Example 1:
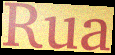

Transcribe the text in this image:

Rua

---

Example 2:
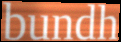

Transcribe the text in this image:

bundh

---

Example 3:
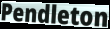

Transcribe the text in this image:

Pendleton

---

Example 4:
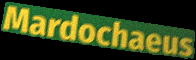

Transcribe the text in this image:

Mardochaeus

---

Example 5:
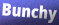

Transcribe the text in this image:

Bunchy